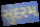
સુંદરમ